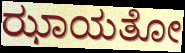
ಝಾಯತೋ